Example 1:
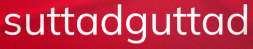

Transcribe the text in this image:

suttadguttad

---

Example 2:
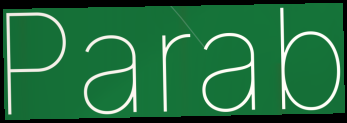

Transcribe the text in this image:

Parab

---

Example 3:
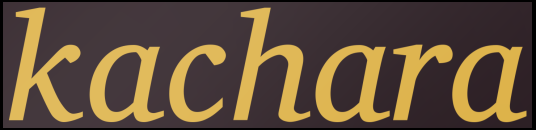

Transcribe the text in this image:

kachara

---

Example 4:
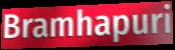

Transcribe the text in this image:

Bramhapuri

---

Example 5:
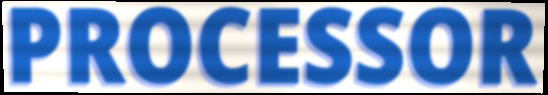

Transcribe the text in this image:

PROCESSOR